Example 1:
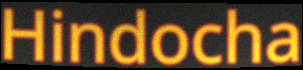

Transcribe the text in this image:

Hindocha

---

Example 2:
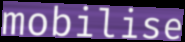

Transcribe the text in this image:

mobilise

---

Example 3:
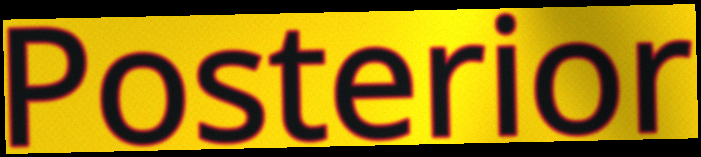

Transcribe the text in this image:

Posterior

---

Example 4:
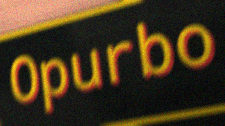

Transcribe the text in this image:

Opurbo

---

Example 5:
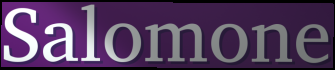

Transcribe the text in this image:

Salomone